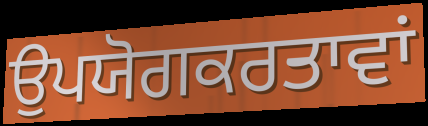
ਉਪਯੋਗਕਰਤਾਵਾਂ